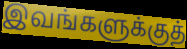
இவங்களுக்குத்